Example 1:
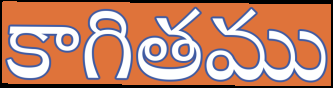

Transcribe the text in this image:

కాగితము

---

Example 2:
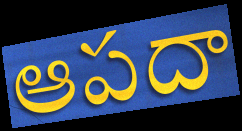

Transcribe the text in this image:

ఆపదా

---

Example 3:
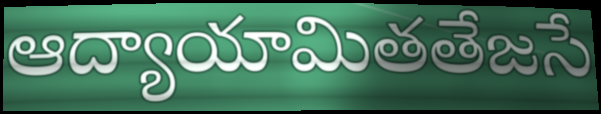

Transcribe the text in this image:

ఆద్యాయామితతేజసే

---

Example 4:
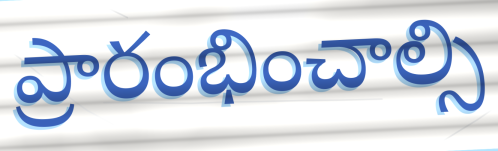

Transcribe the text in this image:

ప్రారంభించాల్సి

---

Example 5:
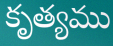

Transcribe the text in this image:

కృత్యము